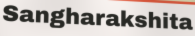
Sangharakshita